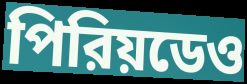
পিরিয়ডেও